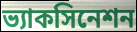
ভ্যাকসিনেশন